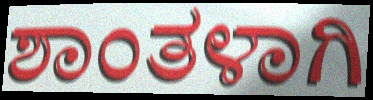
ಶಾಂತಳಾಗಿ